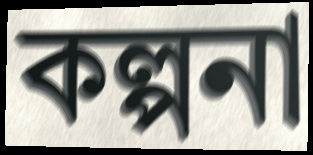
কল্পনা